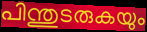
പിന്തുടരുകയും